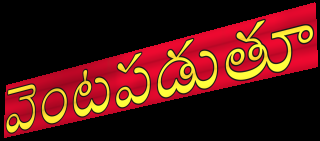
వెంటపడుతూ